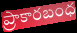
ప్రాకారబంధ